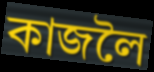
কাজলৈ